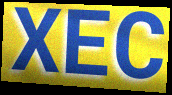
XEC